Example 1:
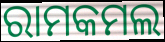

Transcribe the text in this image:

ରାମକମଲ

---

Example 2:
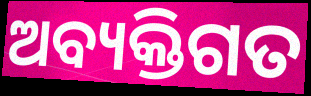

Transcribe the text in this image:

ଅବ୍ୟକ୍ତିଗତ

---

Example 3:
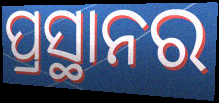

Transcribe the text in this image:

ପ୍ରସ୍ଥାନର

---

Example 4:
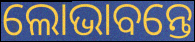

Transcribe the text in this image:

ଲୋଭାବନ୍ତେ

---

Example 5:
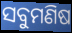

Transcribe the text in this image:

ସବୁମଣିଷ